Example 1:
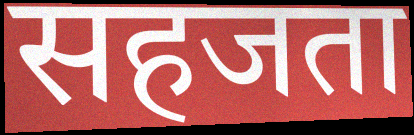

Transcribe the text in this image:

सहजता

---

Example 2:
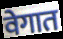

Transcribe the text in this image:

वेगात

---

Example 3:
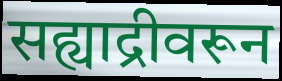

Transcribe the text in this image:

सह्याद्रीवरून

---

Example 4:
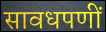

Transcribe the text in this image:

सावधपणीं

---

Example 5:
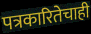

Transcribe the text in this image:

पत्रकारितेचाही